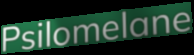
Psilomelane